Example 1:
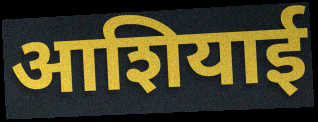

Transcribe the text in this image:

आशियाई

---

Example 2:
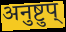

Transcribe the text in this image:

अनुष्टुप्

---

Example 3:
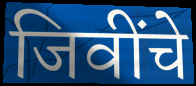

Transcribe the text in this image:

जिवींचे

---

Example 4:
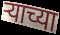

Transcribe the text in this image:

ऱ्याच्या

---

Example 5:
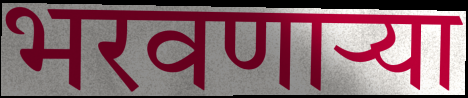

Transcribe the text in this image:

भरवणाऱ्या